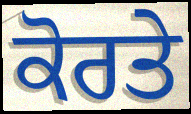
ਕੋਰਤੇ